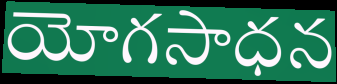
యోగసాధన